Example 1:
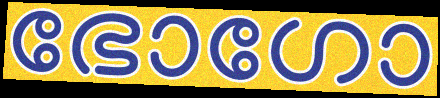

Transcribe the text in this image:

ഭോഗോ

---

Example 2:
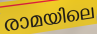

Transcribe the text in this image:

രാമയിലെ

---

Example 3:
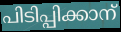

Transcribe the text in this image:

പിടിപ്പിക്കാന്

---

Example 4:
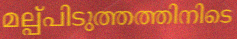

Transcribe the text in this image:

മല്പ്പിടുത്തത്തിനിടെ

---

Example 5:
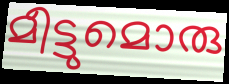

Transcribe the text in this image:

മീട്ടുമൊരു